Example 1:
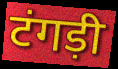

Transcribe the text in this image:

टंगड़ी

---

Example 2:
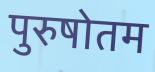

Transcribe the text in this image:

पुरुषोतम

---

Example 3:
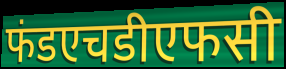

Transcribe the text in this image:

फंडएचडीएफसी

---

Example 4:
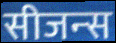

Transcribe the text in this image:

सीजन्स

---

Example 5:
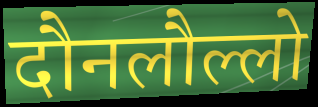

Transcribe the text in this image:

दौनलौल्लो